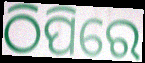
ଠିପିରେ